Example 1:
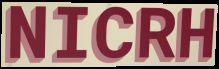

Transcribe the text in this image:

NICRH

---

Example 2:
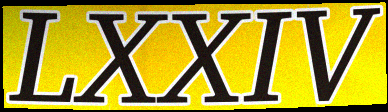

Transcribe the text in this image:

LXXIV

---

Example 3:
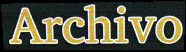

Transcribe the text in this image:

Archivo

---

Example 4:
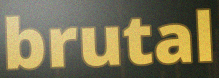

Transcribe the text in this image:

brutal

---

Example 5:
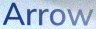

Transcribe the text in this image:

Arrow